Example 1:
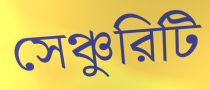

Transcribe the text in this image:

সেঞ্চুরিটি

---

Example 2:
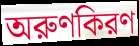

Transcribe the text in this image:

অরুণকিরণ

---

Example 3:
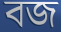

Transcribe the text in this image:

বজ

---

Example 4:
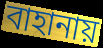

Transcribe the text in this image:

বাহানায়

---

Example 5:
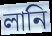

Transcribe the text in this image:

লানি